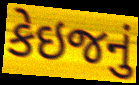
કેઇજનું